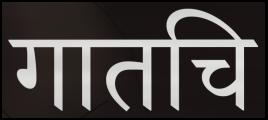
गातचि